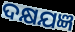
ଦକ୍ଷଯଜ୍ଞ